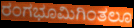
ರಂಗಭೂಮಿಗಿಂತಲೂ